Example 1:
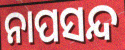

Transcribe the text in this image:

ନାପସନ୍ଦ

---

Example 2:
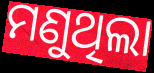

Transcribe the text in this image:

ମଣୁଥିଲା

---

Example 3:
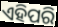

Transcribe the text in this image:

ଏହିପରି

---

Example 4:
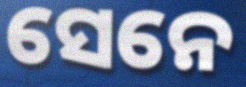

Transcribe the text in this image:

ସେନେ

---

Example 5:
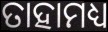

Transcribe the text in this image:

ତାହାମଧ୍ୟ